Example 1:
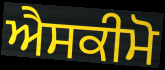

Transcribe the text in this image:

ਐਸਕੀਮੋ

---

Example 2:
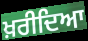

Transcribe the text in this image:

ਖ਼ਰੀਦਿਆ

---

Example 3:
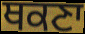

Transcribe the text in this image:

ਥਕਣਾ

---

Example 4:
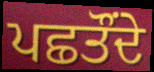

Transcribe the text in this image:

ਪਛਤੌਂਦੇ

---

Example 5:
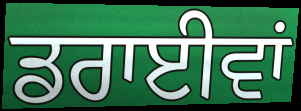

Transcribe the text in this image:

ਡਰਾਈਵਾਂ